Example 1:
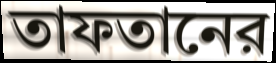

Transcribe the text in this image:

তাফতানের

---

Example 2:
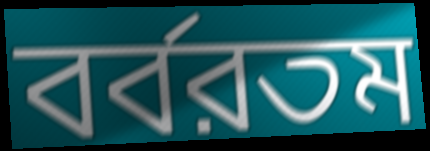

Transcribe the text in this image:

বর্বরতম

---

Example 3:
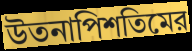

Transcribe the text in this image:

উতনাপিশতিমের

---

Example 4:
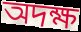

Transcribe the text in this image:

অদক্ষ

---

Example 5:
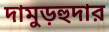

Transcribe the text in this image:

দামুড়হুদার